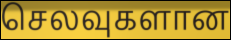
செலவுகளான